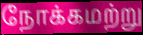
நோக்கமற்று